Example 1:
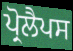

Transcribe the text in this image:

ਪ੍ਰੋਲੈਪਸ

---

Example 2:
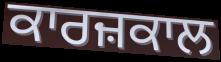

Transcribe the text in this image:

ਕਾਰਜ਼ਕਾਲ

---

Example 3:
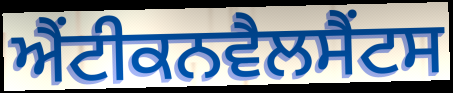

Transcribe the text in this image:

ਐਂਟੀਕਨਵੈਲਸੈਂਟਸ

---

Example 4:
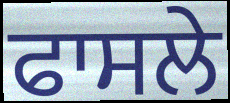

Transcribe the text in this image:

ਫਾਸਲੇ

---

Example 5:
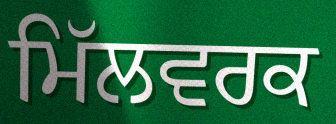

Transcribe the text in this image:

ਮਿੱਲਵਰਕ